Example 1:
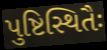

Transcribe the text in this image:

પુષ્ટિસ્થિતૈઃ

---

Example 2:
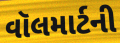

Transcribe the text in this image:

વૉલમાર્ટની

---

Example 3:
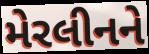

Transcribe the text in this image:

મેરલીનને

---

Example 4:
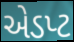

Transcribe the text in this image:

એડપ્ટ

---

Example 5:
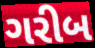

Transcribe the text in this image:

ગરીબ